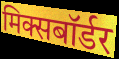
मिक्सबॉर्डर